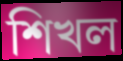
শিখল